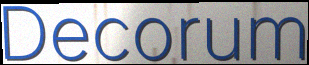
Decorum